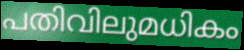
പതിവിലുമധികം